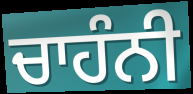
ਚਾਹੰਨੀ